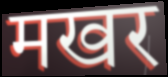
मखर